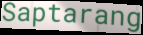
Saptarang